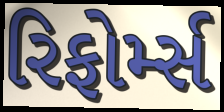
રિફોર્મ્સ